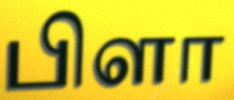
பிளா